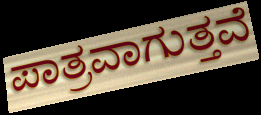
ಪಾತ್ರವಾಗುತ್ತವೆ